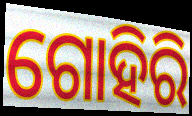
ଗୋହିରି